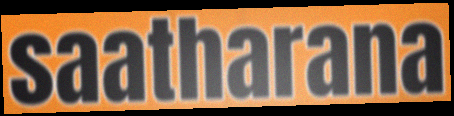
saatharana